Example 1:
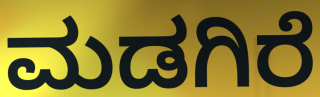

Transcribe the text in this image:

ಮಡಗಿರೆ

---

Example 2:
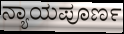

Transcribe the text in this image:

ನ್ಯಾಯಪೂರ್ಣ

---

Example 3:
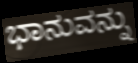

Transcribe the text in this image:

ಭಾನುವನ್ನು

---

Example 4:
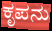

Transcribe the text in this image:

ಕೃಪನು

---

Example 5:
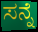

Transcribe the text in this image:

ಸನ್ನೆ